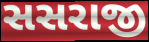
સસરાજી